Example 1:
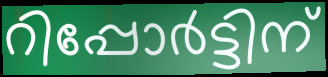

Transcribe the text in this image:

റിപ്പോർട്ടിന്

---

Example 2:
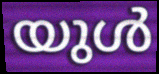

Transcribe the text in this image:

യുൾ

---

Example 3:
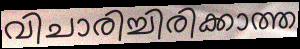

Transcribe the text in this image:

വിചാരിച്ചിരിക്കാത്ത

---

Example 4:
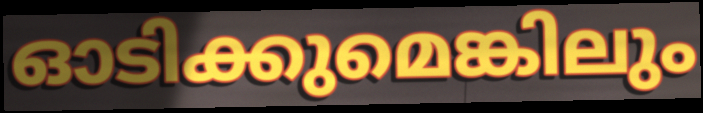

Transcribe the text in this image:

ഓടിക്കുമെങ്കിലും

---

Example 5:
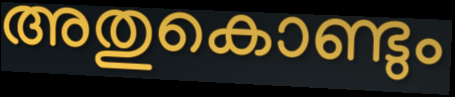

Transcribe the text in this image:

അതുകൊണ്ടും